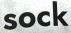
sock